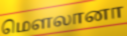
மௌலானா